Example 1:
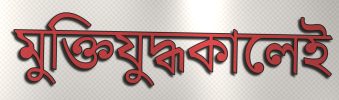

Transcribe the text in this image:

মুক্তিযুদ্ধকালেই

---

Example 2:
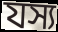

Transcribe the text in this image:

যস্য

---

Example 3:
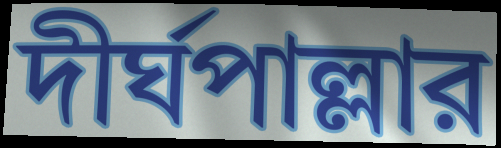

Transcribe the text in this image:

দীর্ঘপাল্লার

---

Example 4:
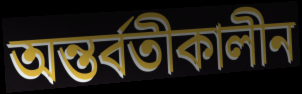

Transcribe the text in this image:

অন্তর্বতীকালীন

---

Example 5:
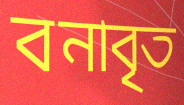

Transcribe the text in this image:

বনাবৃত